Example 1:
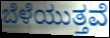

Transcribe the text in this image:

ಬೆಳೆಯುತ್ತವೆ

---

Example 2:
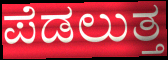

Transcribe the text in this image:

ಪೆಡಲುತ್ತ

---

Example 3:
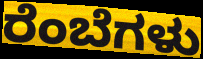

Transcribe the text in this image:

ರೆಂಬೆಗಳು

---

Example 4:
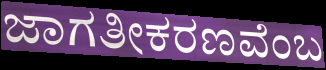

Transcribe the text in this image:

ಜಾಗತೀಕರಣವೆಂಬ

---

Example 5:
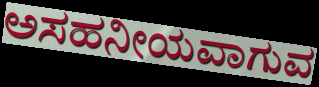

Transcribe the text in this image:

ಅಸಹನೀಯವಾಗುವ